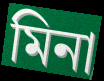
মিনা